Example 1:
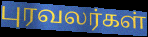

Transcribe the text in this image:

புரவலர்கள்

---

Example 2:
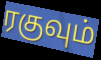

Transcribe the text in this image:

ரகுவும்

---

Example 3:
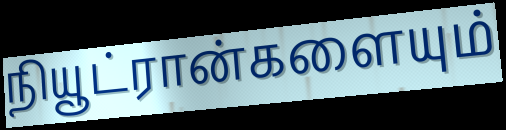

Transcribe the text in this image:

நியூட்ரான்களையும்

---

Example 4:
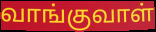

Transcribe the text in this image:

வாங்குவாள்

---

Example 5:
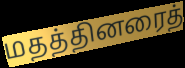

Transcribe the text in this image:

மதத்தினரைத்